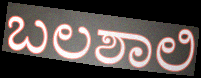
ಬಲಶಾಲಿ